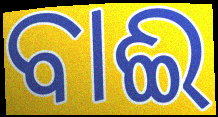
ବାଈ